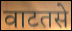
वाटतसे